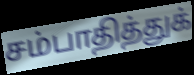
சம்பாதித்துக்